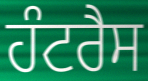
ਹੰਟਰੈਸ